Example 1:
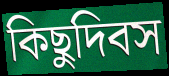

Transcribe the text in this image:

কিছুদিবস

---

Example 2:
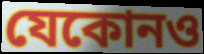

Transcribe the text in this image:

যেকোনও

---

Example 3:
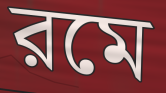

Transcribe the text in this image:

রমে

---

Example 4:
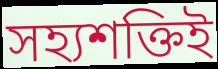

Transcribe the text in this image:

সহ্যশক্তিই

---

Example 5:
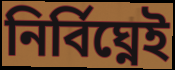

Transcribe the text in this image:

নির্বিঘ্নেই